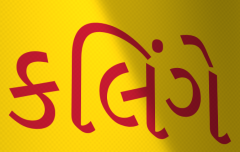
કલિંગે